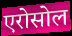
एरोसोल